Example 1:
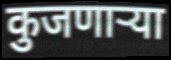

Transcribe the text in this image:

कुजणाऱ्या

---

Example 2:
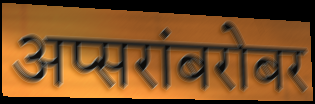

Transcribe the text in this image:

अप्सरांबरोबर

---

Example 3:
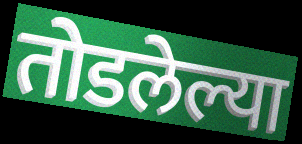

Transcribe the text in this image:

तोडलेल्या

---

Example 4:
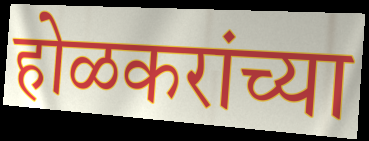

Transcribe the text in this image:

होळकरांच्या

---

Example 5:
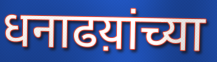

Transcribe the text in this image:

धनाढय़ांच्या